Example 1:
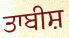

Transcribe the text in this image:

ਤਾਬੀਸ਼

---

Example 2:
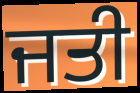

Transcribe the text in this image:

ਜਤੀ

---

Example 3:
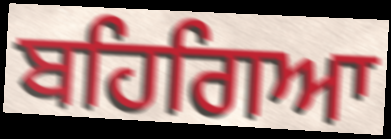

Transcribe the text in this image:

ਬਹਿਗਿਆ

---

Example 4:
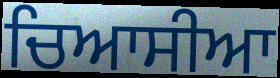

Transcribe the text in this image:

ਚਿਆਸੀਆ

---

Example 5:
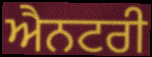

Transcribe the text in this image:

ਐਨਟਰੀ